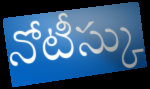
నోటీస్కు